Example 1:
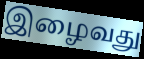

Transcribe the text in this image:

இழைவது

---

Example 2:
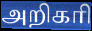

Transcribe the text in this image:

அறிகரி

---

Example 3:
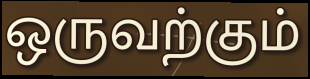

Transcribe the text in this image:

ஒருவற்கும்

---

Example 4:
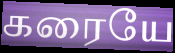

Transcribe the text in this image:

கரையே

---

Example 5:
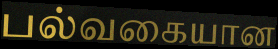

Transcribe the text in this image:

பல்வகையான